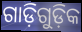
ଗାଡ଼ିଗୁଡ଼ିକ